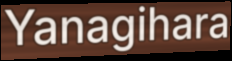
Yanagihara